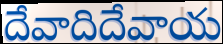
దేవాదిదేవాయ